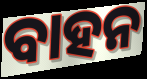
ବାହନ